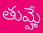
తుమ్హే